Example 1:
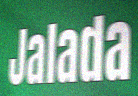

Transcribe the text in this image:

Jalada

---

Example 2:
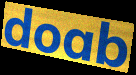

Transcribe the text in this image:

doab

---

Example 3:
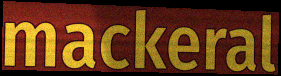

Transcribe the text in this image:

mackeral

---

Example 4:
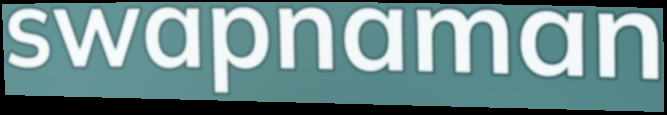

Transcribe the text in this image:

swapnaman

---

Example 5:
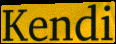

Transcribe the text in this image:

Kendi